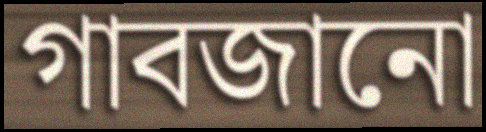
গাবজানো